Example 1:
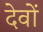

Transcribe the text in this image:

देवों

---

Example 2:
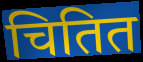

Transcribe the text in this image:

चितित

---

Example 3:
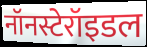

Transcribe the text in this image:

नॉनस्टेरॉइडल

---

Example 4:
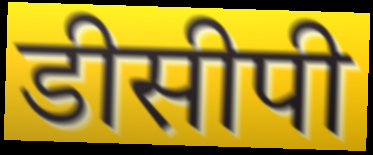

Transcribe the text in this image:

डीसीपी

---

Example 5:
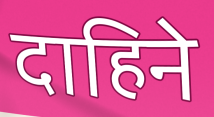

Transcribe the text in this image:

दाहिने